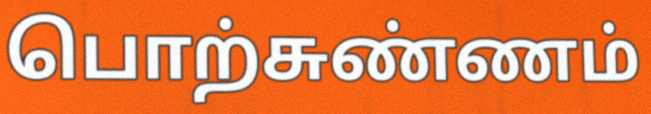
பொற்சுண்ணம்